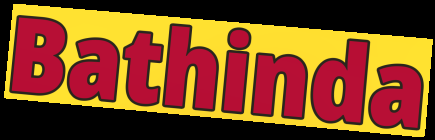
Bathinda